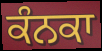
ਕੰਨਕਾ